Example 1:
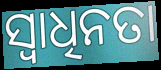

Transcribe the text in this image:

ସ୍ଵାଧିନତା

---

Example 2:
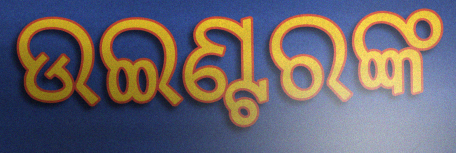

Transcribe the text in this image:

ଉଇଣ୍ଟରଙ୍କ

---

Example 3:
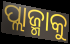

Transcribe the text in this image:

ପ୍ଲାଜ୍ମାକୁ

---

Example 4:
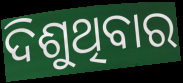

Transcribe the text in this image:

ଦିଶୁଥିବାର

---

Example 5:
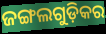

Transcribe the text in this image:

ଜଙ୍ଗଲଗୁଡ଼ିକର